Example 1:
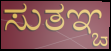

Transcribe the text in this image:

ಸುತಞ್ಚ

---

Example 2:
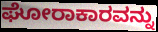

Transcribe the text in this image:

ಘೋರಾಕಾರವನ್ನು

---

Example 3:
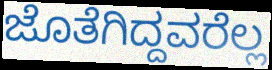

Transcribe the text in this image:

ಜೊತೆಗಿದ್ದವರೆಲ್ಲ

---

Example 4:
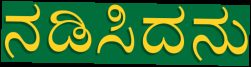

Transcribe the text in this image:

ನಡಿಸಿದನು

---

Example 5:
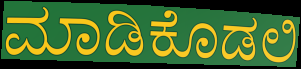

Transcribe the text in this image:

ಮಾಡಿಕೊಡಲಿ